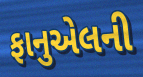
ફાનુએલની